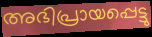
അഭിപ്രായപ്പെട്ടു